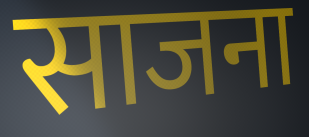
साजना